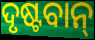
ଦୃଷ୍ଟବାନ୍